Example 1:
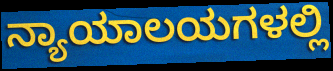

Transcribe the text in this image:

ನ್ಯಾಯಾಲಯಗಳಲ್ಲಿ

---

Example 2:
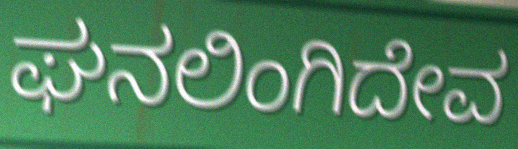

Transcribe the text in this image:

ಘನಲಿಂಗಿದೇವ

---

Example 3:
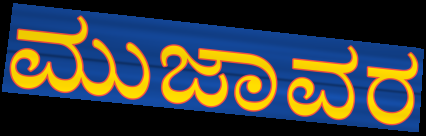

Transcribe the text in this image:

ಮುಜಾವರ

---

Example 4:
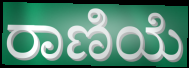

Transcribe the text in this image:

ರಾಣಿಯೆ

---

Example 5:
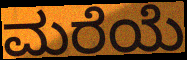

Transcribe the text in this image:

ಮರೆಯೆ